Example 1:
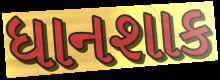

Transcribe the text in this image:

ધાનશાક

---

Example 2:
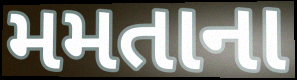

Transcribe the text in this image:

મમતાના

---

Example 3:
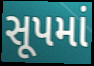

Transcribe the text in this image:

સૂપમાં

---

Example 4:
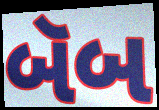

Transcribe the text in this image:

બૅબ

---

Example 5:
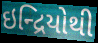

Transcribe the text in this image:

ઇન્દ્રિયોથી